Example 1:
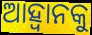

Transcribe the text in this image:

ଆହ୍ବାନକୁ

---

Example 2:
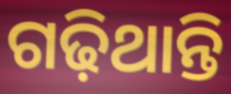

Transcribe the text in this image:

ଗଢ଼ିଥାନ୍ତି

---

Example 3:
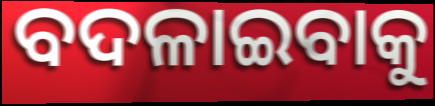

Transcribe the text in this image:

ବଦଳାଇବାକୁ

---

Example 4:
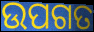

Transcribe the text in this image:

ଉପଗତ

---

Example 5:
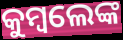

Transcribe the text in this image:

କୁମ୍ବଲେଙ୍କ